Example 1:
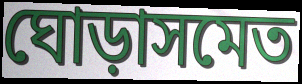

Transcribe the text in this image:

ঘোড়াসমেত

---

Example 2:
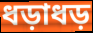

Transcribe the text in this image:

ধড়াধড়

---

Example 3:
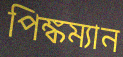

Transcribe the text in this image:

পিঙ্কম্যান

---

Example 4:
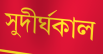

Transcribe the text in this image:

সুদীর্ঘকাল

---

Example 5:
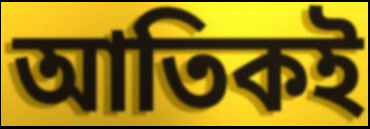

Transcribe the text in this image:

আতিকই